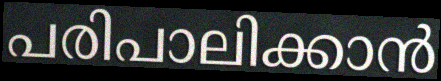
പരിപാലിക്കാൻ